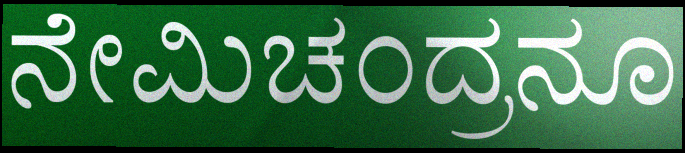
ನೇಮಿಚಂದ್ರನೂ